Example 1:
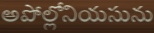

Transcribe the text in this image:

అపోల్లోనియసును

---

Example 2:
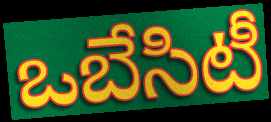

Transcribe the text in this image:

ఒబేసిటీ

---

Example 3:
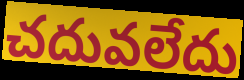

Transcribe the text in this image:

చదువలేదు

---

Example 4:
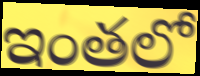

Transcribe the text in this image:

ఇంతలో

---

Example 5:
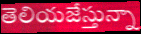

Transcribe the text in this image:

తెలియజేస్తున్నా